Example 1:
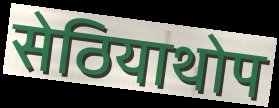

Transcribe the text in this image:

सेठियाथोप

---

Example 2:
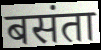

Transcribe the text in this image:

बसंता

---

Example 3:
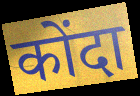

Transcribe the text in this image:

कोंदा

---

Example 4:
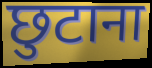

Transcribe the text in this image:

छुटाना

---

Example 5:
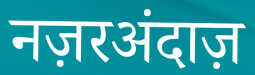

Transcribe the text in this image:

नज़रअंदाज़